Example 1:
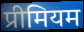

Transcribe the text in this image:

प्रीमियम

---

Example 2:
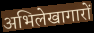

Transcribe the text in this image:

अभिलेखागारों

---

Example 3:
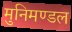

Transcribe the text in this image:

मुनिमण्डल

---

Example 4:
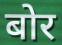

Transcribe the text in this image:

बोर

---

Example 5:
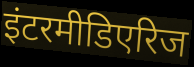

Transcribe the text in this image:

इंटरमीडिएरिज